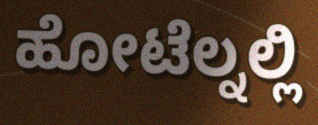
ಹೋಟೆಲ್ನಲ್ಲಿ